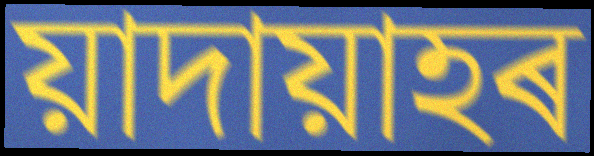
য়াদায়াহৰ